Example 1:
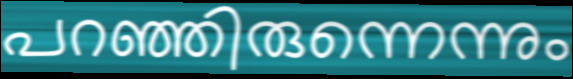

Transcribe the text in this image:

പറഞ്ഞിരുന്നെന്നും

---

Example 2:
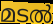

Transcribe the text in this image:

മടൽ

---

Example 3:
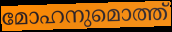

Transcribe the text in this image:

മോഹനുമൊത്ത്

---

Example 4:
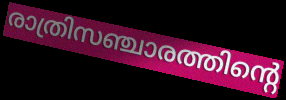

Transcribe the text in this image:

രാത്രിസഞ്ചാരത്തിന്റെ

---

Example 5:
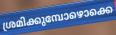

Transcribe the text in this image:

ശ്രമിക്കുമ്പോഴൊക്കെ